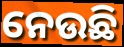
ନେଉଛି